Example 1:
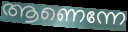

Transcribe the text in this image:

ആണെന്നേ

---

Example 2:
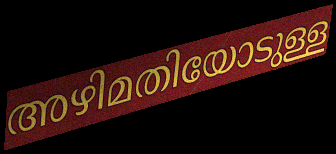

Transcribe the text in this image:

അഴിമതിയോടുള്ള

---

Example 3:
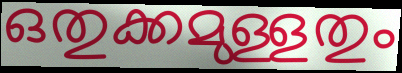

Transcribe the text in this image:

ഒതുക്കമുള്ളതും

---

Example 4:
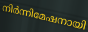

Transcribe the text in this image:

നിർന്നിമേഷനായി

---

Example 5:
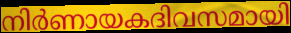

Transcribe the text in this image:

നിർണായകദിവസമായി